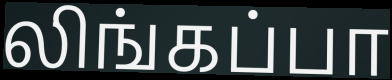
லிங்கப்பா